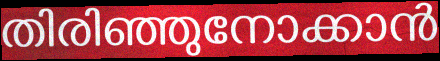
തിരിഞ്ഞുനോക്കാൻ